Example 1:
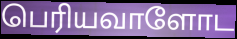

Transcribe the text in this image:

பெரியவாளோட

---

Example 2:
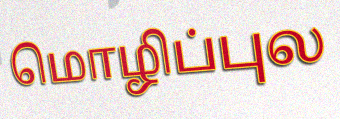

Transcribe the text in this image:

மொழிப்புல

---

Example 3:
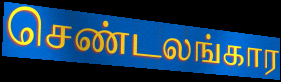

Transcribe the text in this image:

செண்டலங்கார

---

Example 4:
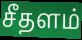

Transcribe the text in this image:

சீதளம்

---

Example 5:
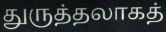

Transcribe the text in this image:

துருத்தலாகத்